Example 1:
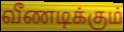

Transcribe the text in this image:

வீணடிக்கும்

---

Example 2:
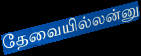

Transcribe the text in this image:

தேவையில்லன்னு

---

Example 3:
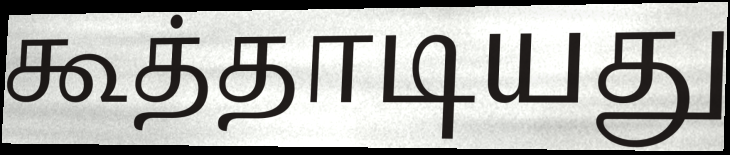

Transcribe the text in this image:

கூத்தாடியது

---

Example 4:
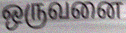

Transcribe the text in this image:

ஒருவனை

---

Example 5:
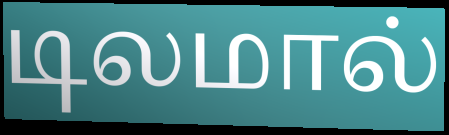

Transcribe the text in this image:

டிலமால்